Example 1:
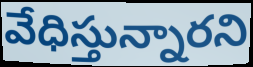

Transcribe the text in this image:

వేధిస్తున్నారని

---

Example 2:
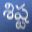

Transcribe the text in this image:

శిష్ట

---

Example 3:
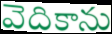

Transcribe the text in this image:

వెదికాను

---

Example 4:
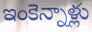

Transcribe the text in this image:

ఇంకెన్నాళ్లు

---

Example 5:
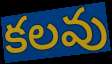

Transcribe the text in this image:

కలవు